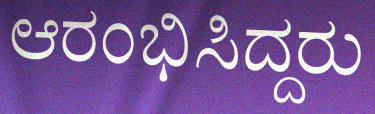
ಆರಂಭಿಸಿದ್ದರು